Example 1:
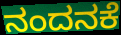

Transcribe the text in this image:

ನಂದನಕೆ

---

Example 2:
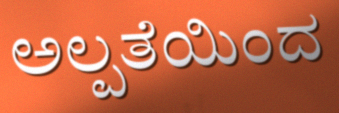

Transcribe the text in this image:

ಅಲ್ಪತೆಯಿಂದ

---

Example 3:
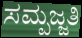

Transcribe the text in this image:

ಸಮ್ಪಜ್ಜತಿ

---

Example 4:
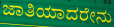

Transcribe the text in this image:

ಜಾತಿಯಾದರೇನು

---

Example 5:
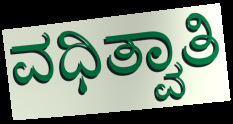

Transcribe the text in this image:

ವಧಿತ್ವಾತಿ